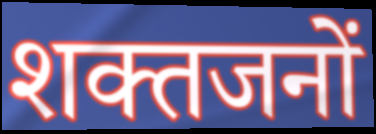
शक्तजनों